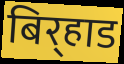
बिर्‍हाड